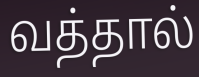
வத்தால்